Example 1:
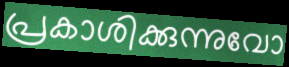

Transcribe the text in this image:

പ്രകാശിക്കുന്നുവോ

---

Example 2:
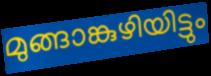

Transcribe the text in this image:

മുങ്ങാങ്കുഴിയിട്ടും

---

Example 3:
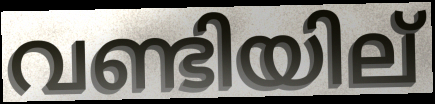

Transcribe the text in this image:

വണ്ടിയില്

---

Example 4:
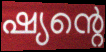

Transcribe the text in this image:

ഷ്യന്റെ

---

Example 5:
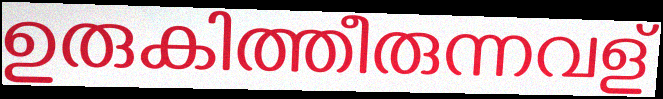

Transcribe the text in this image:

ഉരുകിത്തീരുന്നവള്